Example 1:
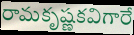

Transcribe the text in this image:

రామకృష్ణకవిగారే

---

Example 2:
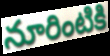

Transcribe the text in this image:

నూరింటికి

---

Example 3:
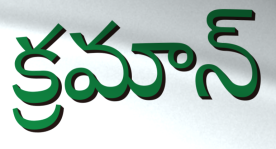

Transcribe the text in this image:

క్రమాన్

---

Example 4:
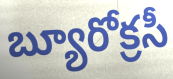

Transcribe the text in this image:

బ్యూరోక్రసీ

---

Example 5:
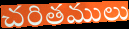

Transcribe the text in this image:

చరితములు